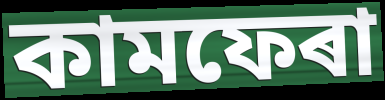
কামফেৰা